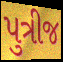
પુત્રીજ